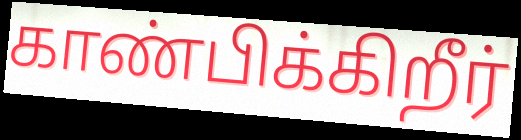
காண்பிக்கிறீர்